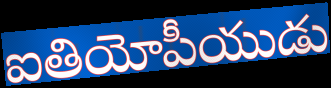
ఐతియోపీయుడు